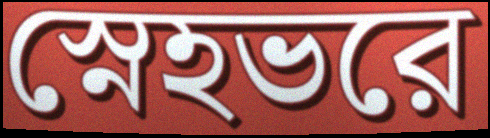
স্নেহভরে